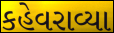
કહેવરાવ્યા